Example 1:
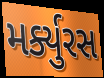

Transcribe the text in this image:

મર્ક્યુરસ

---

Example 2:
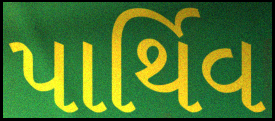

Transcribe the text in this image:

પાર્થિવ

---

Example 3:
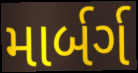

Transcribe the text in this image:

માર્બર્ગ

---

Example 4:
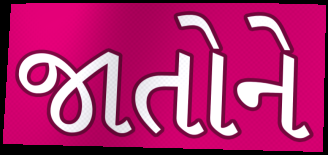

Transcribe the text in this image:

જાતોને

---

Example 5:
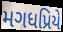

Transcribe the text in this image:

મગધપ્રિયે